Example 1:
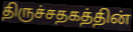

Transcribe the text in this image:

திருச்சதகத்தின்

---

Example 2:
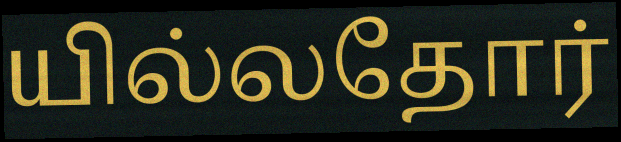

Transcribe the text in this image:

யில்லதோர்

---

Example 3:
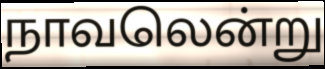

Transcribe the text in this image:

நாவலென்று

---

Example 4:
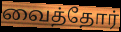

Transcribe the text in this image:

வைத்தோர்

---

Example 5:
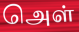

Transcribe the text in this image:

அெள்